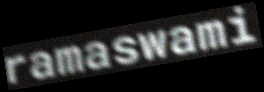
ramaswami